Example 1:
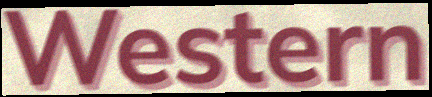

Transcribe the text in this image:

Western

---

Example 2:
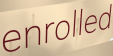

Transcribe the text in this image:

enrolled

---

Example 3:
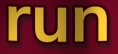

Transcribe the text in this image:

run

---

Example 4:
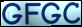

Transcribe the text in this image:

GFGC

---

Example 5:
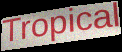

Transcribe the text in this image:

Tropical